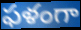
ఫళంగా